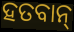
ହତବାନ୍